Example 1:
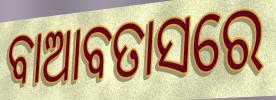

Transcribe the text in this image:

ବାଆବତାସରେ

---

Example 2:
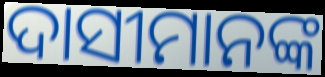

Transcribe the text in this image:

ଦାସୀମାନଙ୍କ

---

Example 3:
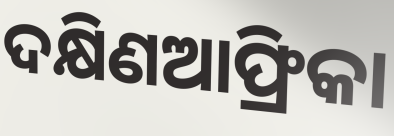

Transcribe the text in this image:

ଦକ୍ଷିଣଆଫ୍ରିକା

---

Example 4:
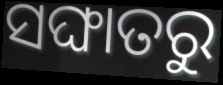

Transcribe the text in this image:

ସଙ୍ଘାତରୁ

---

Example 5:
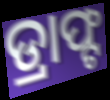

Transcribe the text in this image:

ଡ୍ରାଫ୍ଟ